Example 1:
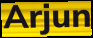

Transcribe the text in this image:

Arjun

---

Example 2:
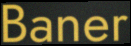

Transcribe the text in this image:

Baner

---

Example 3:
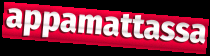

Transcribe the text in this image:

appamattassa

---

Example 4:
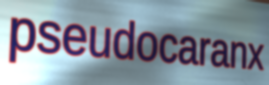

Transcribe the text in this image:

pseudocaranx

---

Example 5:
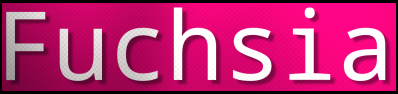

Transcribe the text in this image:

Fuchsia